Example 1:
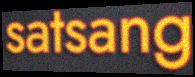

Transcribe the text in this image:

satsang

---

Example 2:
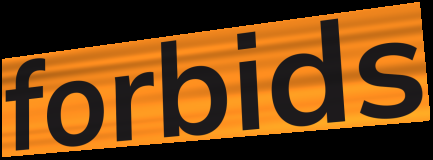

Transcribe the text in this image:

forbids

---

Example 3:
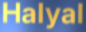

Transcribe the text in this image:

Halyal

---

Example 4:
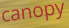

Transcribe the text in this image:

canopy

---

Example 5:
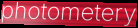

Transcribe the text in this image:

photometery